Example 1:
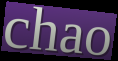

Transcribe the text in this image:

chao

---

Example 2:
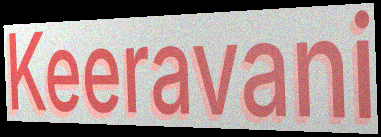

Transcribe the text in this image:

Keeravani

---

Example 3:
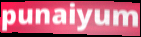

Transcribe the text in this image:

punaiyum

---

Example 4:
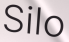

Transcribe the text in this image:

Silo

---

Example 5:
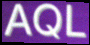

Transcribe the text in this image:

AQL